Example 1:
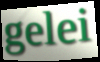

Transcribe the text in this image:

gelei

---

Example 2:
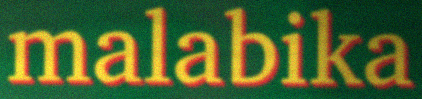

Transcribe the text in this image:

malabika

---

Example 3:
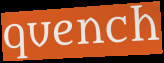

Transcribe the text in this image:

quench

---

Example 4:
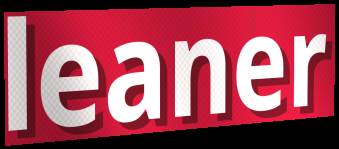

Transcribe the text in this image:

leaner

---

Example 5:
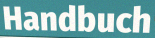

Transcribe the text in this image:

Handbuch